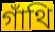
গাঁথি